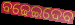
ବଢେଇଦେବ